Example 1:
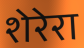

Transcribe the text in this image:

शेरेरा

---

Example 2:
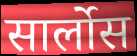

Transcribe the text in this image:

सार्लोस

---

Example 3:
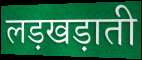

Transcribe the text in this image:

लड़खड़ाती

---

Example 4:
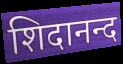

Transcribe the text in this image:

शिदानन्द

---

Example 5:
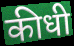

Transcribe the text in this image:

कीधी